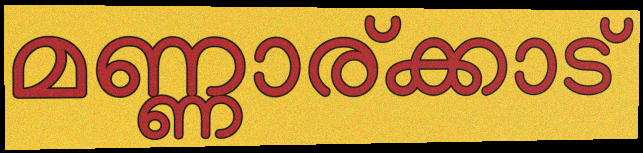
മണ്ണാര്ക്കാട്